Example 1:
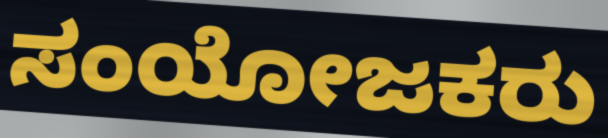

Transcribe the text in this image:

ಸಂಯೋಜಕರು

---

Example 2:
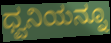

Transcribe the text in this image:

ಧ್ವನಿಯನ್ನೂ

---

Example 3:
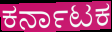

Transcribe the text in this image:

ಕರ್ನಾಟಕ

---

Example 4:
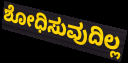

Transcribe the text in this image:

ಶೋಧಿಸುವುದಿಲ್ಲ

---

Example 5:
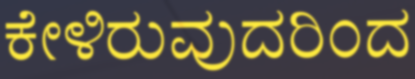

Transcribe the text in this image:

ಕೇಳಿರುವುದರಿಂದ